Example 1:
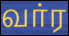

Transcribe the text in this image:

வர்ர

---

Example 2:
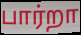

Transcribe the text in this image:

பார்றா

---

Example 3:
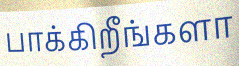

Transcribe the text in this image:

பாக்கிறீங்களா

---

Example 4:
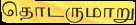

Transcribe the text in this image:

தொடருமாறு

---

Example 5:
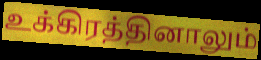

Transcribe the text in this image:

உக்கிரத்தினாலும்